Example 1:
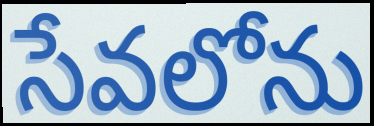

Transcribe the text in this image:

సేవలోను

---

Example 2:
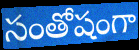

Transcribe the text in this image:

సంతోషంగా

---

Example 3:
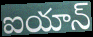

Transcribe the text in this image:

ఐయాన్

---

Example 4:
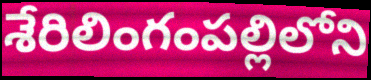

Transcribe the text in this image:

శేరిలింగంపల్లిలోని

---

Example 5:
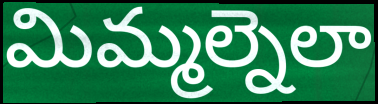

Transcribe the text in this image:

మిమ్మల్నెలా